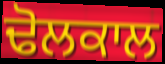
ਢੋਲਕਾਲ